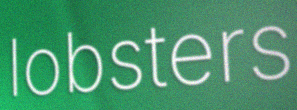
lobsters